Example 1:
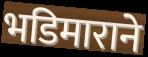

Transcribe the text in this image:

भडिमाराने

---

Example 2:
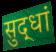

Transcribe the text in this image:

सुद्धां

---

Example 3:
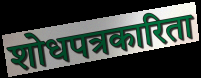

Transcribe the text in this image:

शोधपत्रकारिता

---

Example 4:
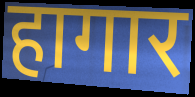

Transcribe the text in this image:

हागार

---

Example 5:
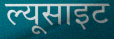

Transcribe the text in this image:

ल्यूसाइट